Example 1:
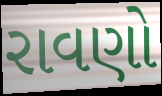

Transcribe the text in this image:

રાવણો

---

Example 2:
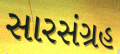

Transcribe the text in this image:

સારસંગ્રહ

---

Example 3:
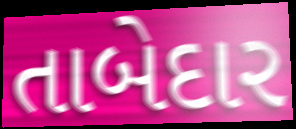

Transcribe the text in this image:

તાબેદાર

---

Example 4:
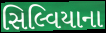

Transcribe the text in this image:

સિલ્વિયાના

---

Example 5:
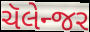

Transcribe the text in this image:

ચૅલેન્જર